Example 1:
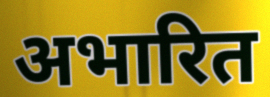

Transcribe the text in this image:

अभारित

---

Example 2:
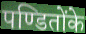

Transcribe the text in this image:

पण्डितोंके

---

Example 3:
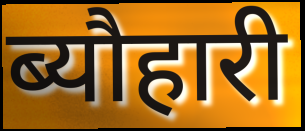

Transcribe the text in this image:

ब्यौहारी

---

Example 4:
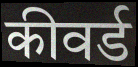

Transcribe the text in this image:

कीवर्ड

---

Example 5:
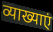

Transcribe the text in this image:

व्याख्याएं